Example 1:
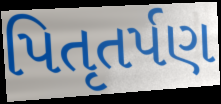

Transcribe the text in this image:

પિતૃતર્પણ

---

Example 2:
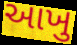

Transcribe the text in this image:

આખુ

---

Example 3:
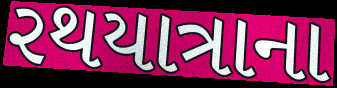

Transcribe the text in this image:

રથયાત્રાના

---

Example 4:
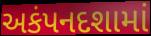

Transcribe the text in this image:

અકંપનદશામાં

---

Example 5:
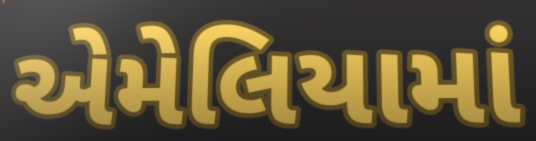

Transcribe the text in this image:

એમેલિયામાં